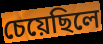
চেয়েছিলে